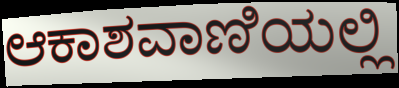
ಆಕಾಶವಾಣಿಯಲ್ಲಿ